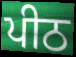
ਪੀਠ